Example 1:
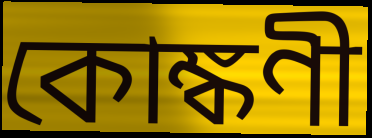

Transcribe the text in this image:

কোঙ্কণী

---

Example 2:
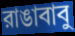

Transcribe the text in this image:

রাঙাবাবু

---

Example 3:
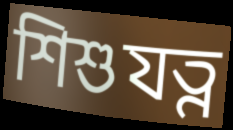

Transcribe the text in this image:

শিশুযত্ন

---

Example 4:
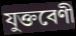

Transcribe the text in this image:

যুক্তবেণী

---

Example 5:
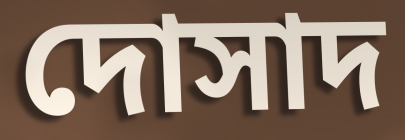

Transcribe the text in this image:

দোসাদ